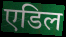
एडिल